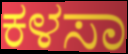
ಕಳಸಾ